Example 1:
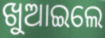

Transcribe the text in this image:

ଖୁଆଇଲେ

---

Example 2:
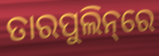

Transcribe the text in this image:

ତାରପୁଲିନ୍‌ରେ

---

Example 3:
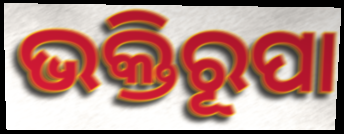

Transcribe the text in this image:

ଭକ୍ତିରୂପା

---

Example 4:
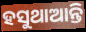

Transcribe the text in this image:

ହସୁଥାଆନ୍ତି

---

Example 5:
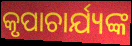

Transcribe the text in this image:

କୃପାଚାର୍ଯ୍ୟଙ୍କ